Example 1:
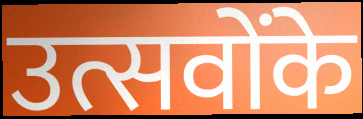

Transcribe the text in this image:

उत्सवोंके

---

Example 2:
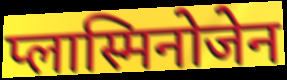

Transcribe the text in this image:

प्लास्मिनोजेन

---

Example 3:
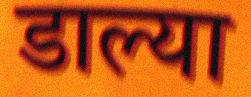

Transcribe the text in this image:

डाल्या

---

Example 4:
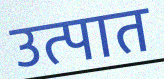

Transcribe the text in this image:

उत्पात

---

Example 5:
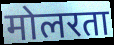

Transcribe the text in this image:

मोलरता